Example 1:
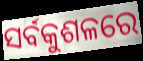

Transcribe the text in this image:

ସର୍ବକୁଶଳରେ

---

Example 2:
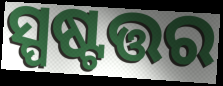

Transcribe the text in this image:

ସ୍ପଷ୍ଟତ୍ତର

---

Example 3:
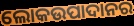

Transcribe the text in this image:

ଲୋକଉପାଦାନର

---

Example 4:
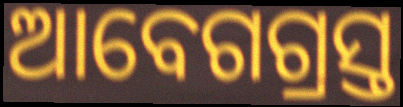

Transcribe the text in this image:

ଆବେଗଗ୍ରସ୍ତ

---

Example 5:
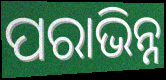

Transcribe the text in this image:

ପରାଭିନ୍ନ